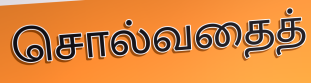
சொல்வதைத்